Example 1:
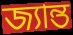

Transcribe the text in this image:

জ্যান্ত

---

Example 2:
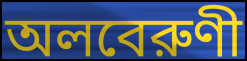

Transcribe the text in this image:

অলবেরুণী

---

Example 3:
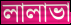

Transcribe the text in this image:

লালাভা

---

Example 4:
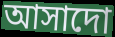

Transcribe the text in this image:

আসাদো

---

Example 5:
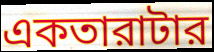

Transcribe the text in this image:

একতারাটার